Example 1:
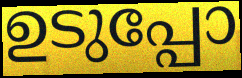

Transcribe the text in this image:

ഉടുപ്പോ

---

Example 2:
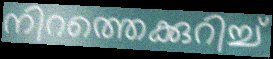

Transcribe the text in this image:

നിറത്തെക്കുറിച്ച്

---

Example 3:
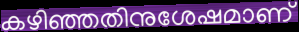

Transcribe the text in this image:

കഴിഞ്ഞതിനുശേഷമാണ്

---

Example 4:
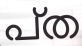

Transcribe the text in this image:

പ്‌ത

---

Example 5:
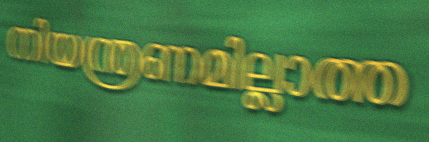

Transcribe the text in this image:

നിയന്ത്രണമില്ലാത്ത